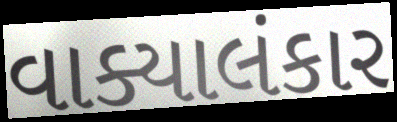
વાક્યાલંકાર